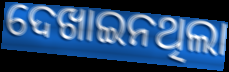
ଦେଖାଇନଥିଲା